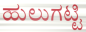
ಹುಲುಗಟ್ಟಿ